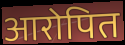
आरोपित